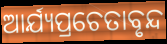
ଆର୍ଯ୍ୟପ୍ରଚେତାବୃନ୍ଦ